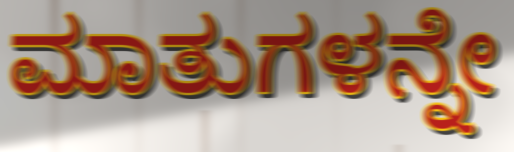
ಮಾತುಗಳನ್ನೇ